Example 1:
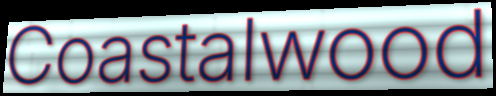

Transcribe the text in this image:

Coastalwood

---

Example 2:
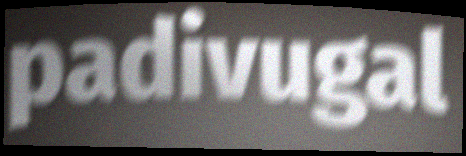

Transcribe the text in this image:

padivugal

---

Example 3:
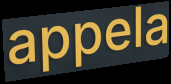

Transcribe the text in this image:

appela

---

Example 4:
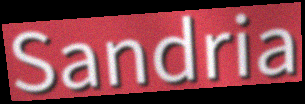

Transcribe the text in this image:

Sandria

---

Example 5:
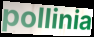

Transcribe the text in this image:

pollinia